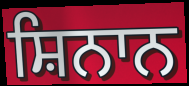
ਸ਼ਿਨਾਨ